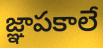
జ్ఞాపకాలే